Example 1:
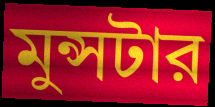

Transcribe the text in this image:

মুন্সটার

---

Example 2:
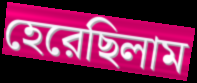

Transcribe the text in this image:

হেরেছিলাম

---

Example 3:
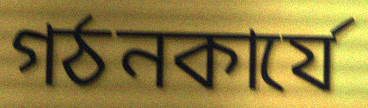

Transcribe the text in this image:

গঠনকার্যে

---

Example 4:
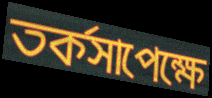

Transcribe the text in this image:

তর্কসাপেক্ষে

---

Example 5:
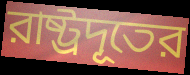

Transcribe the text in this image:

রাষ্ট্রদূতের